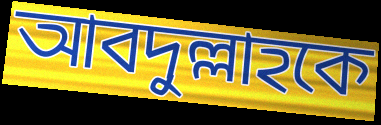
আবদুল্লাহকে